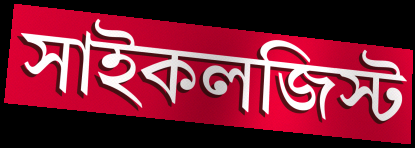
সাইকলজিস্ট